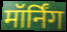
मॉर्निंग